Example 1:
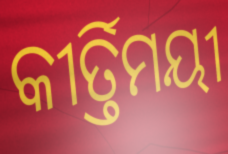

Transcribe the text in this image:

କୀର୍ତ୍ତିମୟୀ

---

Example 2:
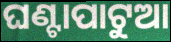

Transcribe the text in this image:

ଘଣ୍ଟାପାଟୁଆ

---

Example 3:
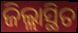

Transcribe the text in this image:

ଜିଲ୍ଲାସ୍ଥିତ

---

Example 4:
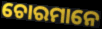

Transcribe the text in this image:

ଚୋରମାନେ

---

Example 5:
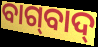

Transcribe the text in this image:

ବାଗ୍‌ବାଦ୍